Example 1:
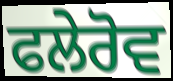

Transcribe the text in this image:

ਫਲੇਰੋਵ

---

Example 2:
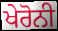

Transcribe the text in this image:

ਖੇਰੋਨੀ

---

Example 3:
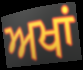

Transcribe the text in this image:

ਅਖਾਂ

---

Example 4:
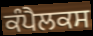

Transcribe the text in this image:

ਕੰਪੈਲਕਸ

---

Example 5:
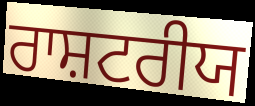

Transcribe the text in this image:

ਰਾਸ਼ਟਰੀਯ